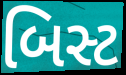
બિસ્ટ